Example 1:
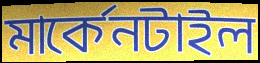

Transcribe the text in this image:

মার্কেনটাইল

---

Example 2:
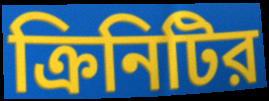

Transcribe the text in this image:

ক্রিনিটির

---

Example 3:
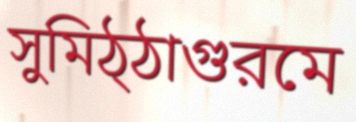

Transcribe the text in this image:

সুমিঠ্ঠাগুরমে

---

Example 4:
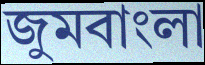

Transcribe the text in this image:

জুমবাংলা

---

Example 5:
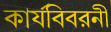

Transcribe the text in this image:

কার্যবিবরনী